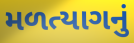
મળત્યાગનું